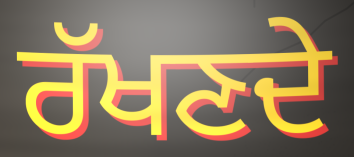
ਰੱਖਣਦੇ